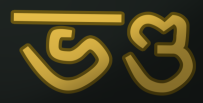
ভণ্ড